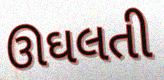
ઊઘલતી